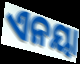
ଏନୟା